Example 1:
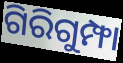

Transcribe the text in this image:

ଗିରିଗୁମ୍ଫା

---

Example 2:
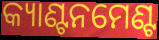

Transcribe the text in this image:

କ୍ୟାଣ୍ଟନମେଣ୍ଟ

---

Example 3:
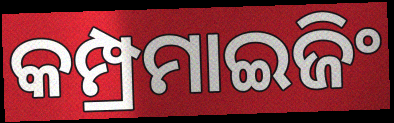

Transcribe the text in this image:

କମ୍ପ୍ରମାଇଜିଂ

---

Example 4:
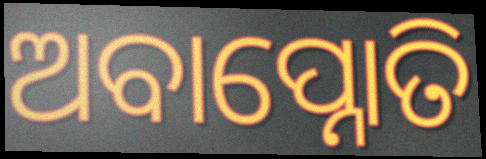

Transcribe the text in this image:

ଅବାପ୍ନୋତି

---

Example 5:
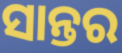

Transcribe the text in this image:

ସାନ୍ତର